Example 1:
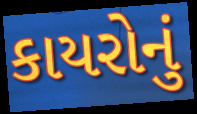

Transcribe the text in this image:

કાયરોનું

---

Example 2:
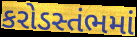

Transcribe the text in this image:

કરોડસ્તંભમાં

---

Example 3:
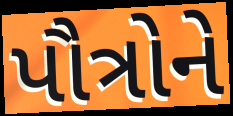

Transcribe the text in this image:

પૌત્રોને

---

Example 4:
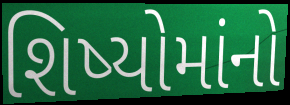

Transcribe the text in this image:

શિષ્યોમાંનો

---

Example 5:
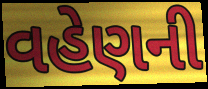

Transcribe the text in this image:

વહેણની